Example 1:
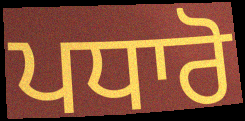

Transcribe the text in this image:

ਪਧਾਰੋ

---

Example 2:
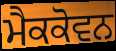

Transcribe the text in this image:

ਮੈਕਕੋਵਨ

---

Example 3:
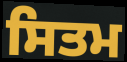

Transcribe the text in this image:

ਸਿਤਮ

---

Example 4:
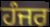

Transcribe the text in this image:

ਹੰਜਰ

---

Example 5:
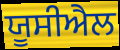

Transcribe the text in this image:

ਯੂਸੀਐਲ